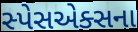
સ્પેસએક્સના